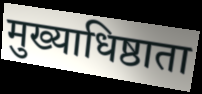
मुख्याधिष्ठाता